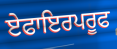
ਏਫਾਇਰਪਰੂਫ